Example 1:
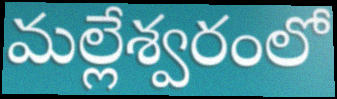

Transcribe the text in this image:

మల్లేశ్వరంలో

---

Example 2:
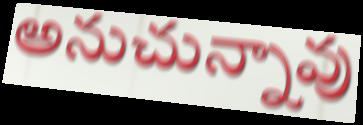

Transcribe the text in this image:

అనుచున్నావు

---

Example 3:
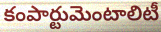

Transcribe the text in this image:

కంపార్టుమెంటాలిటీ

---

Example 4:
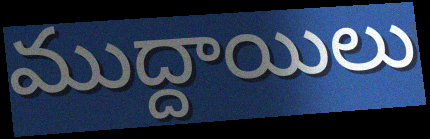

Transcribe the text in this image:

ముద్దాయిలు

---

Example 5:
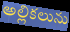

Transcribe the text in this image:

అల్లికలును